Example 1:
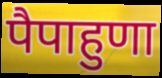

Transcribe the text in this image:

पैपाहुणा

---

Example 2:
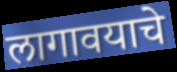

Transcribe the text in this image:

लागावयाचे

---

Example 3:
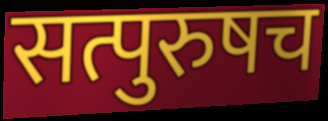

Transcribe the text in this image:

सत्पुरुषच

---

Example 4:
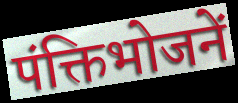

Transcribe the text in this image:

पंक्तिभोजनें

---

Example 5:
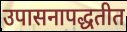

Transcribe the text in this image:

उपासनापद्धतीत